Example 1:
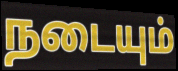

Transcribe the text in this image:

நடையும்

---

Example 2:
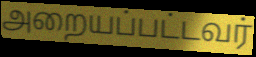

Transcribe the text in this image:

அறையப்பட்டவர்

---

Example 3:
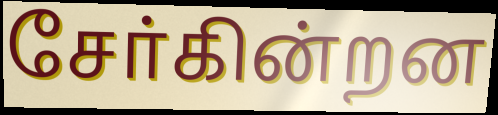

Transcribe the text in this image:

சேர்கின்றன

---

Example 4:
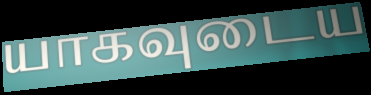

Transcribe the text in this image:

யாகவுடைய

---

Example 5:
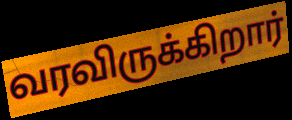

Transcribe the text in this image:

வரவிருக்கிறார்